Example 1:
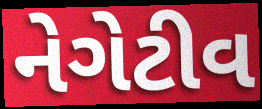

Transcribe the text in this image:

નેગેટીવ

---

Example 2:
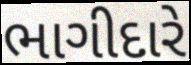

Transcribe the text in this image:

ભાગીદારે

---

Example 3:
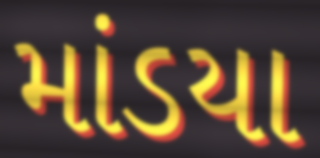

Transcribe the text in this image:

માંડયા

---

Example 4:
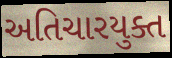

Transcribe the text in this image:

અતિચારયુક્ત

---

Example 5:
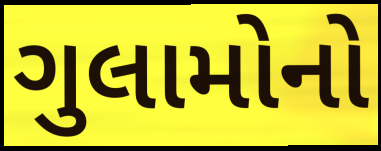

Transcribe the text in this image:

ગુલામોનો